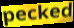
pecked